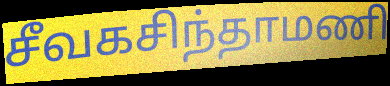
சீவகசிந்தாமணி